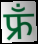
फ्रँ